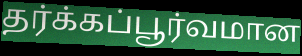
தர்க்கப்பூர்வமான